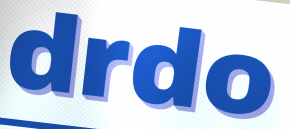
drdo